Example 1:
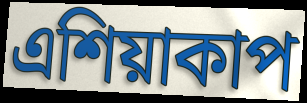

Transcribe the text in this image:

এশিয়াকাপ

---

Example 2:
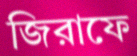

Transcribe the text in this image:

জিরাফে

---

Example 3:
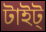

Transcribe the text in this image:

টাইট্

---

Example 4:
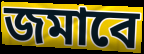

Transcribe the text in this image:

জমাবে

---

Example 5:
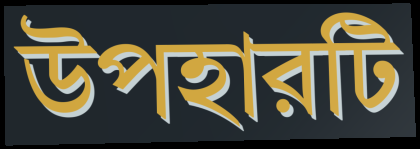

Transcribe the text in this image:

উপহারটি